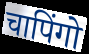
चापिंगो